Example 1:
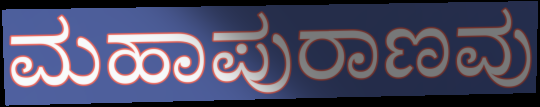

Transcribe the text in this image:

ಮಹಾಪುರಾಣವು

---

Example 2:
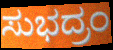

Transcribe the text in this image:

ಸುಭದ್ರಂ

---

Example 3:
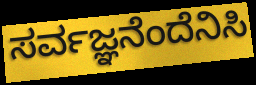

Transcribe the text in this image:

ಸರ್ವಜ್ಞನೆಂದೆನಿಸಿ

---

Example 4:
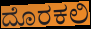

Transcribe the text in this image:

ದೊರಕಲಿ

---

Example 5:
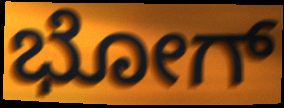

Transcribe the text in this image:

ಭೋಗ್